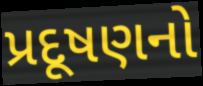
પ્રદૂષણનો